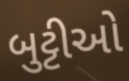
બુટ્ટીઓ